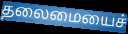
தலைமையைச்